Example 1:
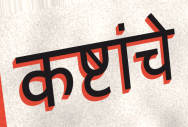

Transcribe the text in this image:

कष्टांचे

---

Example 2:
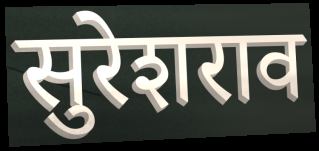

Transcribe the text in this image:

सुरेशराव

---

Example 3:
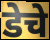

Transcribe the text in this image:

डेचे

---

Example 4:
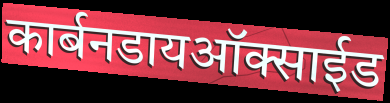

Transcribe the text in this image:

कार्बनडायऑक्साईड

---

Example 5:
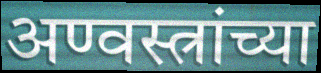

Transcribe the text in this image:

अण्वस्त्रांच्या